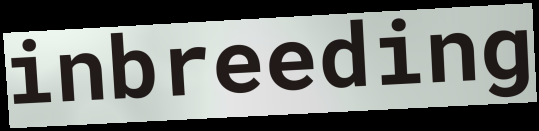
inbreeding